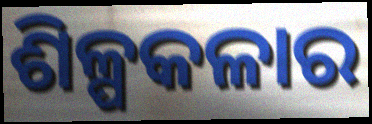
ଶିଳ୍ପକଳାର